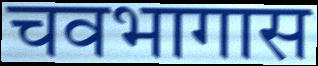
चवभागास